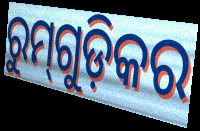
ରୁମ୍‌ଗୁଡ଼ିକର